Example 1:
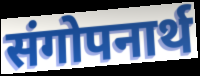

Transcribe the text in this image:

संगोपनार्थ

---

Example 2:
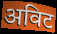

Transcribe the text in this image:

अविट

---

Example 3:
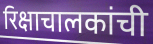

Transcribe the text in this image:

रिक्षाचालकांची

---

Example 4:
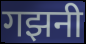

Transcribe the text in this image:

गझनी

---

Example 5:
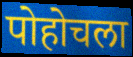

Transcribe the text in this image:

पोहोचला